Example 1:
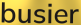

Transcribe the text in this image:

busier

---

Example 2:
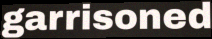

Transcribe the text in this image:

garrisoned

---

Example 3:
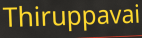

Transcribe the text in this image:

Thiruppavai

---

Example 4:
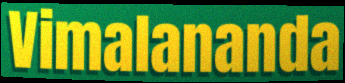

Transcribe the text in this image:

Vimalananda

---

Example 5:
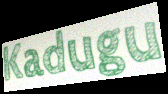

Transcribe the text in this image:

Kadugu